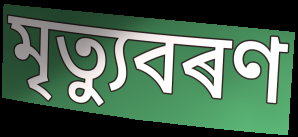
মৃত্যুবৰণ